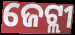
ଜେଟ୍ଲୀ